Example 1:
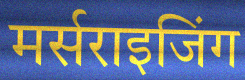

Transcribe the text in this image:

मर्सराइजिंग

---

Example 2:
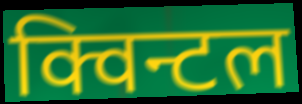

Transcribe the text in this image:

क्विन्टल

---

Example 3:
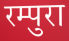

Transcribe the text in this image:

रम्पुरा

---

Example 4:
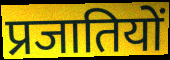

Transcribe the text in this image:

प्रजातियों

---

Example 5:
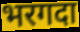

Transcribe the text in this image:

भरगदा